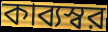
কাব্যস্বর